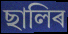
ছালিৰ